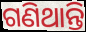
ଗଣିଥାନ୍ତି